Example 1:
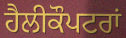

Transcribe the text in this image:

ਹੈਲੀਕੌਪਟਰਾਂ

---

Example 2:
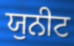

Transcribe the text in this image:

ਯੁਨੀਟ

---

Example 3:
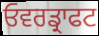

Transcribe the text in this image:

ਓਵਰਡ੍ਰਾਫਟ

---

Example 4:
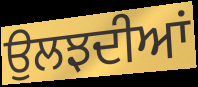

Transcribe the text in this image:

ਉਲਝਦੀਆਂ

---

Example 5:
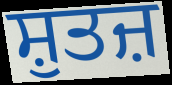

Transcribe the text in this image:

ਸ਼ੁਤਜ਼